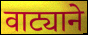
वाट्याने